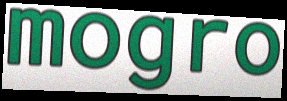
mogro